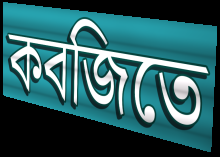
কবজিতে